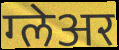
ग्लेअर